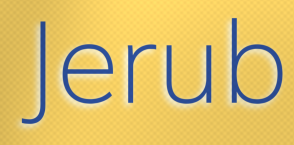
Jerub